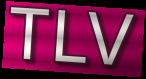
TLV